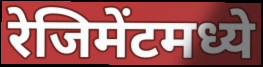
रेजिमेंटमध्ये